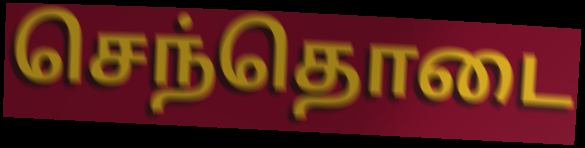
செந்தொடை